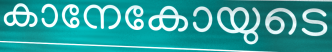
കാനേകോയുടെ